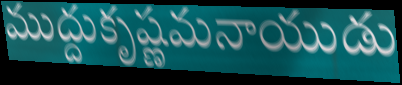
ముద్దుకృష్ణమనాయుడు